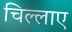
चिल्लाए